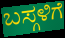
ಬಸ್ಗಳಿಗೆ